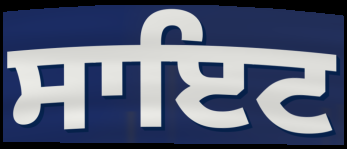
ਸਾਇਟ